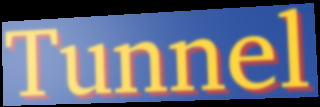
Tunnel